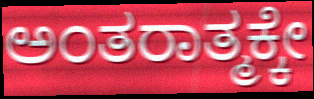
ಅಂತರಾತ್ಮಕ್ಕೇ